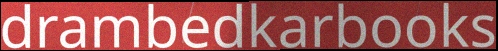
drambedkarbooks